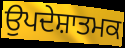
ਉਪਦੇਸ਼ਾਤਮਕ